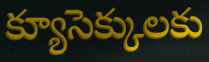
క్యూసెక్కులకు